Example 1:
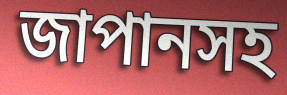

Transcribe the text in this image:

জাপানসহ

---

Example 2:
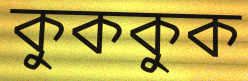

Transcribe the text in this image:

কুককুক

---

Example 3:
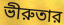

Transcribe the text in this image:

ভীরুতার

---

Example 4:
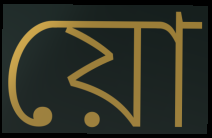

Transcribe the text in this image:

য়ো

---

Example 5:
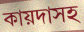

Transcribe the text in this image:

কায়দাসহ